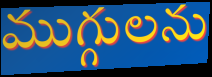
ముగ్గులను